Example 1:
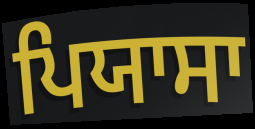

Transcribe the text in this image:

ਪਿਯਾਸਾ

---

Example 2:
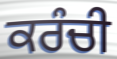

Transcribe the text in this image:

ਕਰੰਚੀ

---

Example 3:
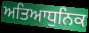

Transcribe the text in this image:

ਅਤਿਆਧੁਨਿਕ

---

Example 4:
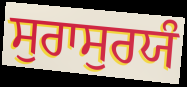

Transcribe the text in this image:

ਸੁਰਾਸੁਰਯੰ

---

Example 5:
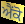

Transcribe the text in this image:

ਐਂਕੋ